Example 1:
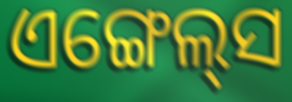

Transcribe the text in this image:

ଏଙ୍ଗେଲ୍‌ସ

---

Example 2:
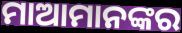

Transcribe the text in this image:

ମାଆମାନଙ୍କର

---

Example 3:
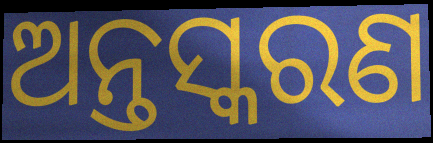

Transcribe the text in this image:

ଅନ୍ତସ୍କରଣ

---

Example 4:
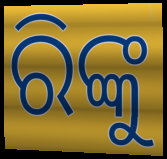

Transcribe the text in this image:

ରିଙ୍କୁ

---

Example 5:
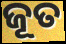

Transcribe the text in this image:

ଜୂତ